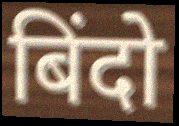
बिंदो